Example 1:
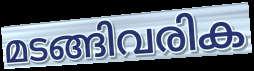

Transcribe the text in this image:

മടങ്ങിവരിക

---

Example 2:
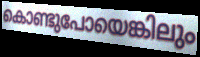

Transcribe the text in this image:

കൊണ്ടുപോയെങ്കിലും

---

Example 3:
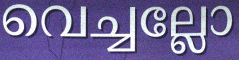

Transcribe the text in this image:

വെച്ചല്ലോ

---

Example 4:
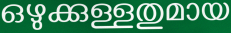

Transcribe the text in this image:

ഒഴുക്കുള്ളതുമായ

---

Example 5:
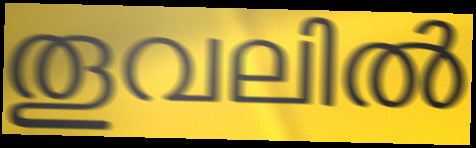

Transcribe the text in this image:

തൂവലിൽ